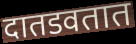
दातडवतात